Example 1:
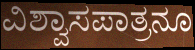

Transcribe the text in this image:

ವಿಶ್ವಾಸಪಾತ್ರನೂ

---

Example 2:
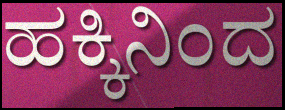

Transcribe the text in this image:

ಹಕ್ಕಿನಿಂದ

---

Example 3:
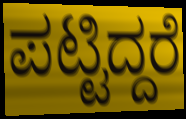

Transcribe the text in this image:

ಪಟ್ಟಿದ್ದರೆ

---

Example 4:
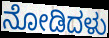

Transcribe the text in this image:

ನೋಡಿದಳು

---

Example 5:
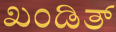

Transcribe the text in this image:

ಖಂಡಿತ್